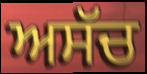
ਅਸੱਚ